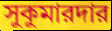
সুকুমারদার